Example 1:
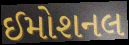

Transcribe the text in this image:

ઈમોશનલ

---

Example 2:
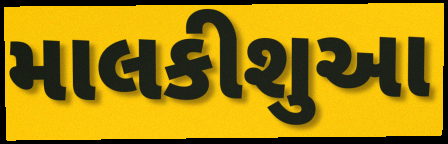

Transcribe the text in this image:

માલકીશુઆ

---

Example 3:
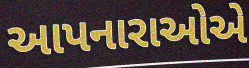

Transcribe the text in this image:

આપનારાઓએ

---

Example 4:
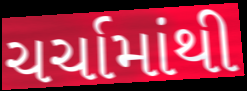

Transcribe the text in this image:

ચર્ચામાંથી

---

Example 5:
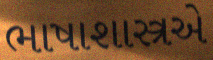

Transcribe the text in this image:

ભાષાશાસ્ત્રએ